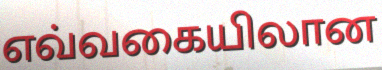
எவ்வகையிலான